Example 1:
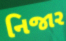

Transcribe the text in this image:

નિજાર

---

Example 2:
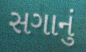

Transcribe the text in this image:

સગાનું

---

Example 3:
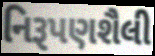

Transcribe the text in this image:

નિરૂપણશૈલી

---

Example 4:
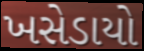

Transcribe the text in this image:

ખસેડાયો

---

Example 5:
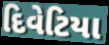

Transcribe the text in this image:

દિવેટિયા